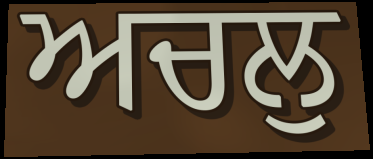
ਅਚਲੁ